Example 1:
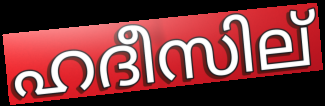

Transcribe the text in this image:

ഹദീസില്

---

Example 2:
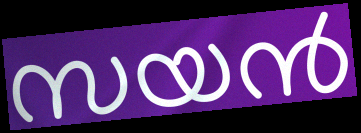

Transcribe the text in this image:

സയൻ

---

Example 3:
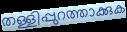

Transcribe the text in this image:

തള്ളിപ്പുറത്താക്കുക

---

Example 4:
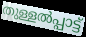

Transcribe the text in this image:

തുള്ളൽപ്പാട്ട്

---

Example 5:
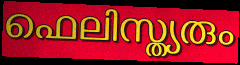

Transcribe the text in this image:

ഫെലിസ്ത്യരും